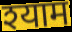
श्‍याम